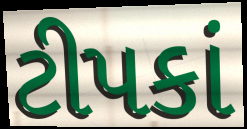
ટીપકાં